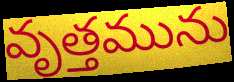
వృత్తమును